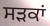
ਸੜਕਾਂ